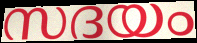
സദയം